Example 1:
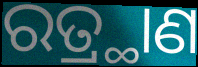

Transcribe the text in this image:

ରତ୍ର୍ଥାଣ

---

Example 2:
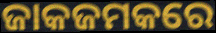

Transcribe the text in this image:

ଜାକଜମକରେ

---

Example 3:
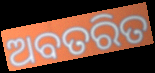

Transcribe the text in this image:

ଅବତରିତ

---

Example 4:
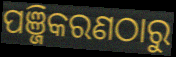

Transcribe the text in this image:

ପଞ୍ଜିକରଣଠାରୁ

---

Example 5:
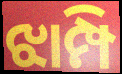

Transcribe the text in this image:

ଝାମ୍ପି